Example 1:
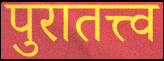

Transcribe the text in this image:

पुरातत्त्व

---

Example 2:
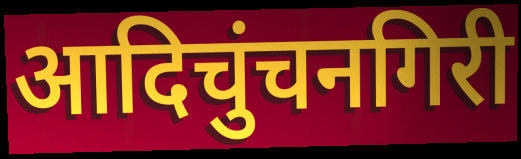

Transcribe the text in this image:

आदिचुंचनगिरी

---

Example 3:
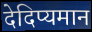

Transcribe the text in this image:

देदिप्यमान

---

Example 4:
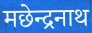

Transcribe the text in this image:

मछेन्द्रनाथ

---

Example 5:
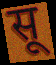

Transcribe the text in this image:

सू